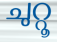
ചുറ്റൂ